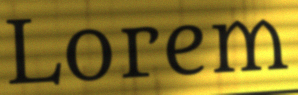
Lorem